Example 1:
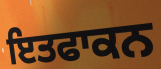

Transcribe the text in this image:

ਇਤਫਾਕਨ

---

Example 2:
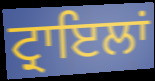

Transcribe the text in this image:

ਟ੍ਰਾਇਲਾਂ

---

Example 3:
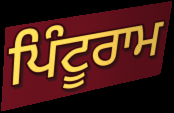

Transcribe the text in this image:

ਪਿੰਟੂਰਾਮ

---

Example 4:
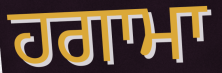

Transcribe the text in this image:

ਹਗਾਮਾ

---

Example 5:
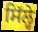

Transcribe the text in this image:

ਸਿੱਲ੍ਹੇ